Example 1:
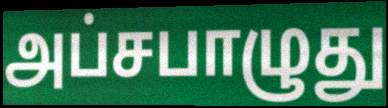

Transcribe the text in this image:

அப்சபாழுது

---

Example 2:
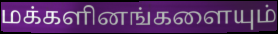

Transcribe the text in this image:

மக்களினங்களையும்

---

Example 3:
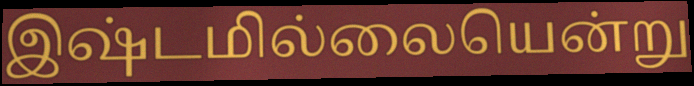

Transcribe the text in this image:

இஷ்டமில்லையென்று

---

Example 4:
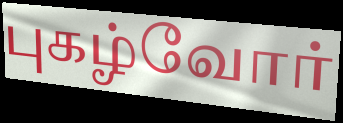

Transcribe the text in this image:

புகழ்வோர்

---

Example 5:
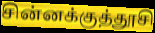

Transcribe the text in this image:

சின்னக்குத்தூசி